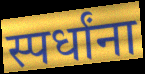
स्पर्धांना